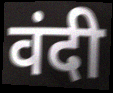
वंदी